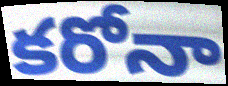
కరోనా